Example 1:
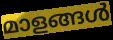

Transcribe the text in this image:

മാളങ്ങൾ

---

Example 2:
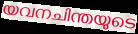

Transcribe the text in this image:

യവനചിന്തയുടെ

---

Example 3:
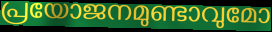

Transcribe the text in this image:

പ്രയോജനമുണ്ടാവുമോ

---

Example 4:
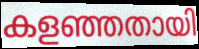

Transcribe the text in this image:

കളഞ്ഞതായി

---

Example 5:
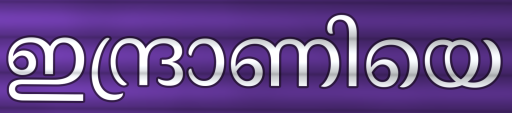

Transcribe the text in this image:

ഇന്ദ്രാണിയെ